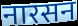
नारसन